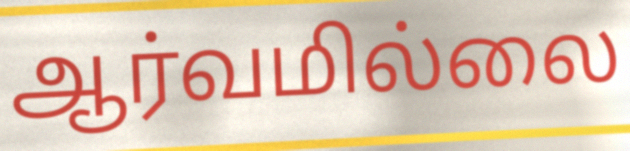
ஆர்வமில்லை